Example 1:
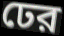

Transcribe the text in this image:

ঢের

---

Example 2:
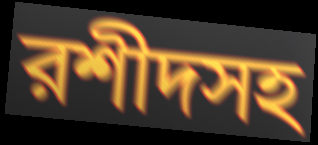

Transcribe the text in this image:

রশীদসহ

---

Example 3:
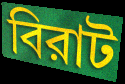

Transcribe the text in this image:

বিরাট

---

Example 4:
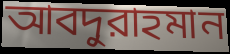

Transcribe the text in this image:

আবদুরাহমান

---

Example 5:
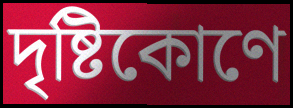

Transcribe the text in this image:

দৃষ্টিকোণে